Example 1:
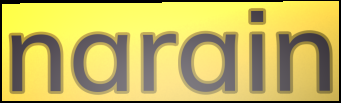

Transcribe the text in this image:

narain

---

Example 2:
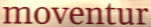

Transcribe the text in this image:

moventur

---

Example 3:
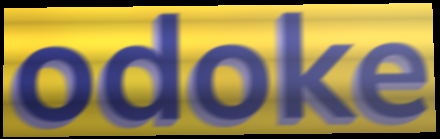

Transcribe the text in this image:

odoke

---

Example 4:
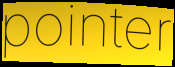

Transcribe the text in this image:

pointer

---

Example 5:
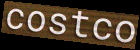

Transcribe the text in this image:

costco